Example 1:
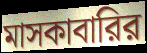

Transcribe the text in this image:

মাসকাবারির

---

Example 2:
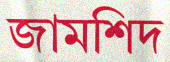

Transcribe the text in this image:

জামশিদ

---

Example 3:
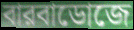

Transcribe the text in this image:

বারবাডোজে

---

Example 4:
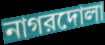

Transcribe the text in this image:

নাগরদোলা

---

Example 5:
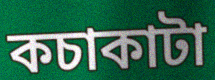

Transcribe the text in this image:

কচাকাটা